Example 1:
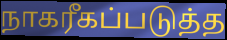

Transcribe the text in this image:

நாகரீகப்படுத்த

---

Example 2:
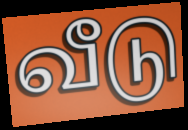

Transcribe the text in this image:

வீடு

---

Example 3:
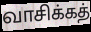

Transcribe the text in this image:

வாசிக்கத்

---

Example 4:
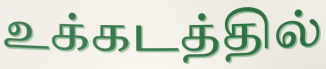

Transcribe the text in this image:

உக்கடத்தில்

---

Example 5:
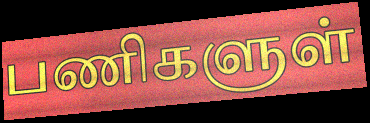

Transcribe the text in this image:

பணிகளுள்